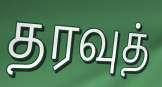
தரவுத்